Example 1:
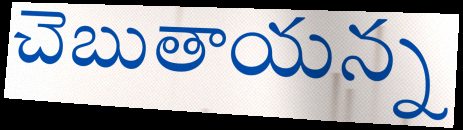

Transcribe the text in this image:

చెబుతాయన్న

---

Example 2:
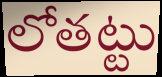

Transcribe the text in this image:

లోతట్టు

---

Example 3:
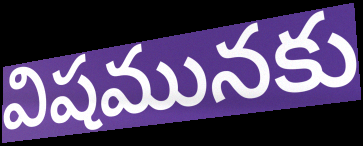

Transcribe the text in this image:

విషమునకు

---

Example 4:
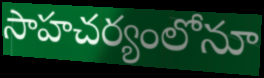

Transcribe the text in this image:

సాహచర్యంలోనూ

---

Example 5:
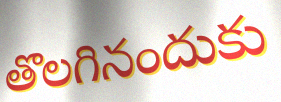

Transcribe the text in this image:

తొలగినందుకు